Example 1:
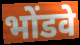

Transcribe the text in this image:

भोंडवे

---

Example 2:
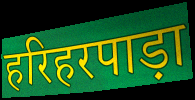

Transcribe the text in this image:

हरिहरपाड़ा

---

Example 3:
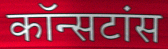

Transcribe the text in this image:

कॉन्सटांस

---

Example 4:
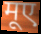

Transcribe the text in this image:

मूए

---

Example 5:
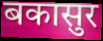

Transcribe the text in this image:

बकासुर